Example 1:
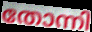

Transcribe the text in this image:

തോന്നി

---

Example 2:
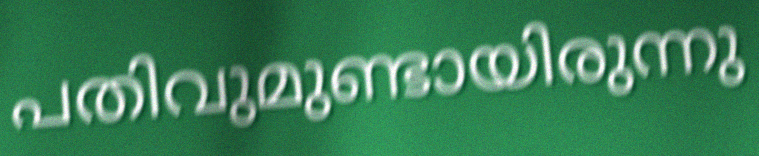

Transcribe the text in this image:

പതിവുമുണ്ടായിരുന്നു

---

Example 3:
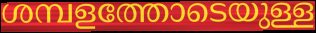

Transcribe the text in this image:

ശമ്പളത്തോടെയുള്ള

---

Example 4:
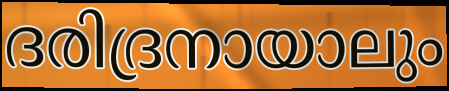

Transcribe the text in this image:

ദരിദ്രനായാലും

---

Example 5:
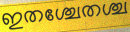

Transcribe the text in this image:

ഇതശ്ചേതശ്ച